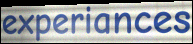
experiances